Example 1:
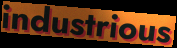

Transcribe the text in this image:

industrious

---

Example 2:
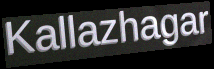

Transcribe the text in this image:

Kallazhagar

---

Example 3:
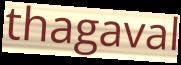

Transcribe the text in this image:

thagaval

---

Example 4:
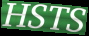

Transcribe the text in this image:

HSTS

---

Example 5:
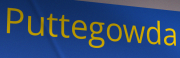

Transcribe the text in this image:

Puttegowda